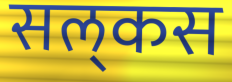
सल्कस